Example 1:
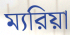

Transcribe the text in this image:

ম্যরিয়া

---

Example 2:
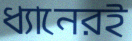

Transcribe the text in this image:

ধ্যানেরই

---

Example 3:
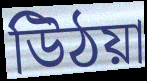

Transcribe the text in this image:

উিঠয়া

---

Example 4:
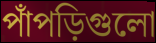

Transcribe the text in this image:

পাঁপড়িগুলো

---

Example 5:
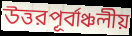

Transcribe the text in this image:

উত্তরপূর্বাঞ্চলীয়